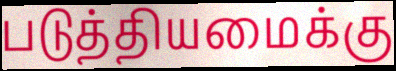
படுத்தியமைக்கு